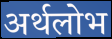
अर्थलोभ